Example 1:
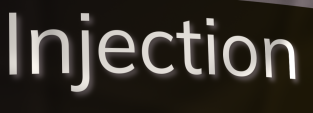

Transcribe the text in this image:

Injection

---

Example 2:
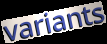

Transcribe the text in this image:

variants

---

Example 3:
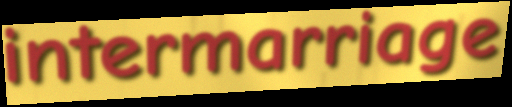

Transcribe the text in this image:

intermarriage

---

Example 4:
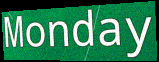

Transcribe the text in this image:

Monday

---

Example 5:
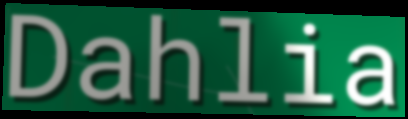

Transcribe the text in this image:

Dahlia